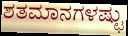
ಶತಮಾನಗಳಷ್ಟು